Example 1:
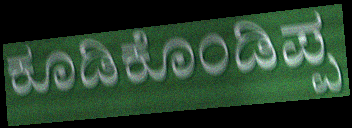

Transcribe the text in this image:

ಕೂಡಿಕೊಂಡಿಪ್ಪ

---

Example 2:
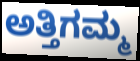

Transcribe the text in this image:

ಅತ್ತಿಗಮ್ಮ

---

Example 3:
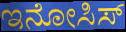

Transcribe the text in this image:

ಇನೋಸಿಸ್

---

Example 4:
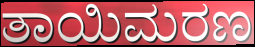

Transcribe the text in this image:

ತಾಯಿಮರಣ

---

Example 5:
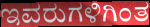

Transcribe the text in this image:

ಇವರುಗಳಿಗಿಂತ